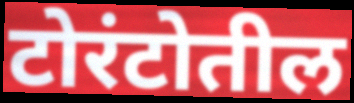
टोरंटोतील